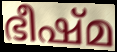
ഭീഷ്മ